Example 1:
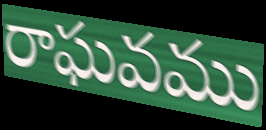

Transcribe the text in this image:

రాఘవము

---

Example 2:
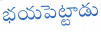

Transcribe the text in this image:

భయపెట్టాడు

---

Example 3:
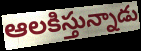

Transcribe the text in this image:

ఆలకిస్తున్నాడు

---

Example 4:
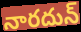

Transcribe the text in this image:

నారదున్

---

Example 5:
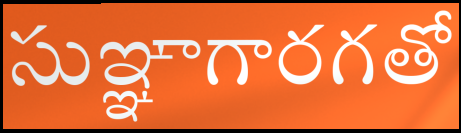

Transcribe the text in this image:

సుఞ్ఞాగారగతో